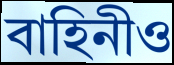
বাহিনীও